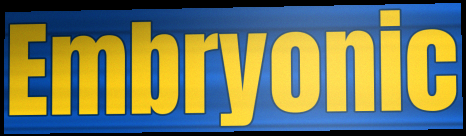
Embryonic